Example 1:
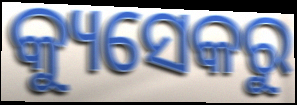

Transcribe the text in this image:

କ୍ୟୁସେକରୁ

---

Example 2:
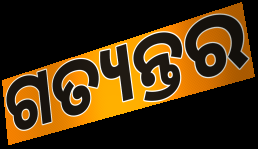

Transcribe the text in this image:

ଗତ୍ୟନ୍ତର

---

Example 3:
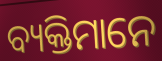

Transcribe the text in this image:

ବ୍ୟକ୍ତିମାନେ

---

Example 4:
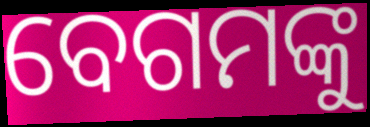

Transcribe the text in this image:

ବେଗମଙ୍କୁ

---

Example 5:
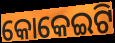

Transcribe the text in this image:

କୋକେଇଟି